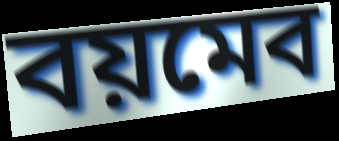
বয়মেব